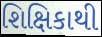
શિક્ષિકાથી